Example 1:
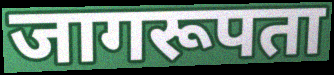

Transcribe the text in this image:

जागरूपता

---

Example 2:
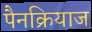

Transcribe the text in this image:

पैनक्रियाज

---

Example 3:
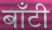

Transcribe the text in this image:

बाँटी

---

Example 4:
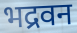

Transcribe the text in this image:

भद्रवन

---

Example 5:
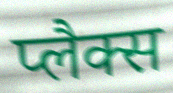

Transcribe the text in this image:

प्लैक्स